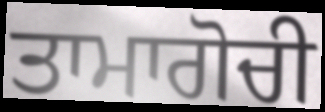
ਤਾਮਾਗੋਚੀ